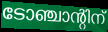
ടോഞ്ചാന്റിന്